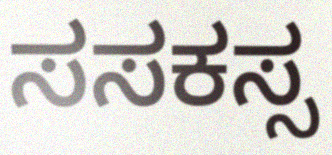
ಸಸಕಸ್ಸ